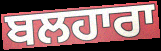
ਬਲਹਾਰਾ